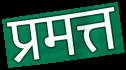
प्रमत्त